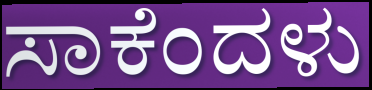
ಸಾಕೆಂದಳು